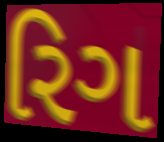
રિગ